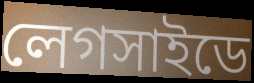
লেগসাইডে